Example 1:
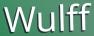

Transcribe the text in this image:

Wulff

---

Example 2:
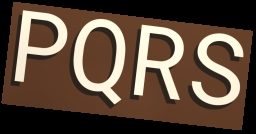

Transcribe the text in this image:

PQRS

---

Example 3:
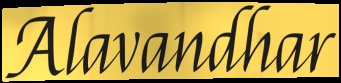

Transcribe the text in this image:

Alavandhar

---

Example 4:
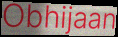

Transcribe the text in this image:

Obhijaan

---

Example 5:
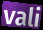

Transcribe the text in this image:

vali